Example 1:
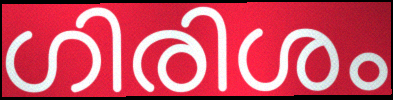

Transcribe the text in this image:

ഗിരിശം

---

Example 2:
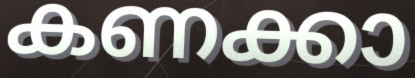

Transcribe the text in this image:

കണക്കാ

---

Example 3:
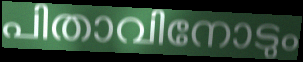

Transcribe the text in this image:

പിതാവിനോടും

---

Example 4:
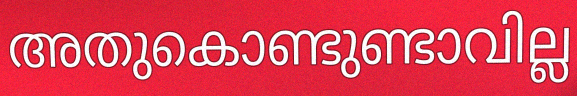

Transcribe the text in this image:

അതുകൊണ്ടുണ്ടാവില്ല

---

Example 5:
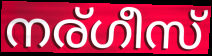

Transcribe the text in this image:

നര്ഗീസ്